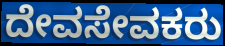
ದೇವಸೇವಕರು